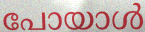
പോയാൾ